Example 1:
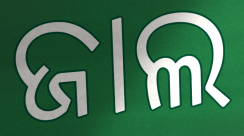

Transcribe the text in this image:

ଜାଲ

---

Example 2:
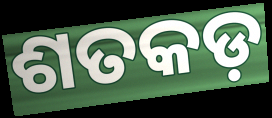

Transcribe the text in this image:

ଶତକଡ଼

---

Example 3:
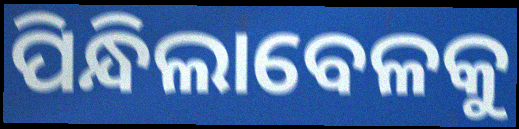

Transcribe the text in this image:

ପିନ୍ଧିଲାବେଳକୁ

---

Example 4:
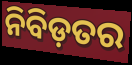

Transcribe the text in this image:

ନିବିଡ଼ତର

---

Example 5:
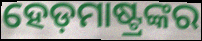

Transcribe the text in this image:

ହେଡ଼ମାଷ୍ଟ୍ରଙ୍କର